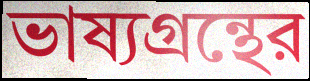
ভাষ্যগ্রন্থের